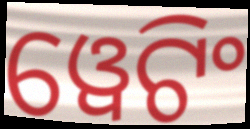
ୱେଟିଂ